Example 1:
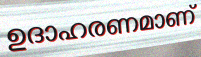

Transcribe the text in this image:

ഉദാഹരണമാണ്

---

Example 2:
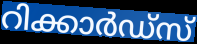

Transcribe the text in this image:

റിക്കാർഡ്സ്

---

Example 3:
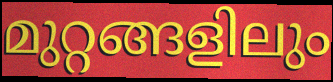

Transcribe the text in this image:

മുറ്റങ്ങളിലും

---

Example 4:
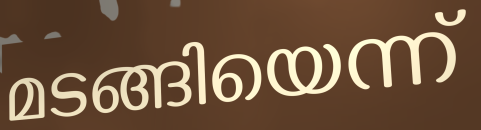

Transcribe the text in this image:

മടങ്ങിയെന്ന്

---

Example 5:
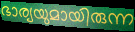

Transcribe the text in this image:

ഭാര്യയുമായിരുന്ന